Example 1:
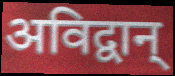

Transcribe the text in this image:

अविद्वान्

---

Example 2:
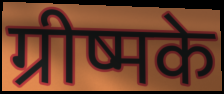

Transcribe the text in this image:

ग्रीष्मके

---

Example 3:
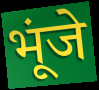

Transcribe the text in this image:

भूंजे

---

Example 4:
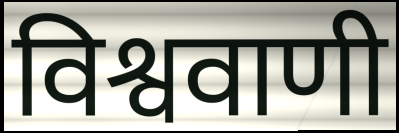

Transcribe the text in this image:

विश्ववाणी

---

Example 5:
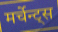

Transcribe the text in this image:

मर्चेन्ट्स